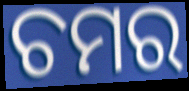
ଚମର